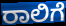
ರಾಲಿಗೆ